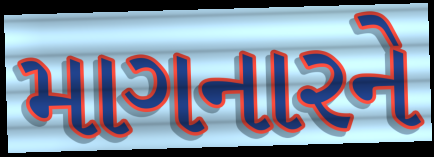
માગનારને